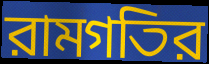
রামগতির